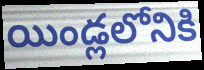
యిండ్లలోనికి